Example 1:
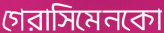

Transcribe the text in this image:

গেরাসিমেনকো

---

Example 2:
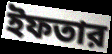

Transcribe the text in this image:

ইফতার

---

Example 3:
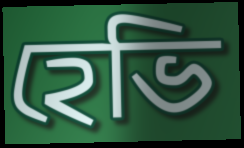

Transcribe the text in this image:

হেভি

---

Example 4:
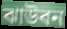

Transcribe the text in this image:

ঝাউবন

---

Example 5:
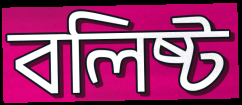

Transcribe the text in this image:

বলিষ্ট